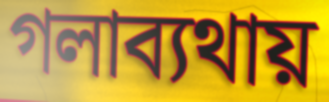
গলাব্যথায়